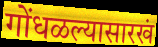
गोंधळल्यासारखं